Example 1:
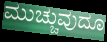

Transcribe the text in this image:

ಮುಚ್ಚುವುದೂ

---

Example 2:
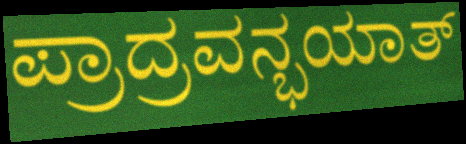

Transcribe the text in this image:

ಪ್ರಾದ್ರವನ್ಭಯಾತ್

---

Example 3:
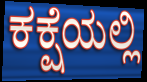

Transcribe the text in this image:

ಕಕ್ಷೆಯಲ್ಲಿ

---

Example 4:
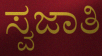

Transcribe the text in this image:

ಸ್ವಜಾತಿ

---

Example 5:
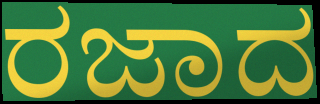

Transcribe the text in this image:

ರಜಾದ